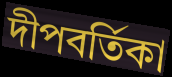
দীপবর্তিকা